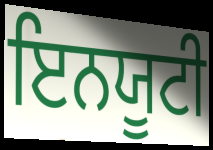
ਇਨਯੂਟੀ